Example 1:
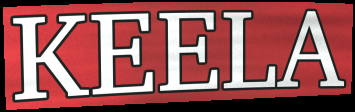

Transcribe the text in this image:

KEELA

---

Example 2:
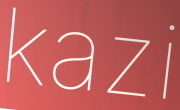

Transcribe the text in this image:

kazi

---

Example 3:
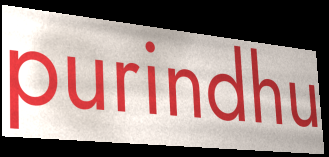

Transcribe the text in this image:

purindhu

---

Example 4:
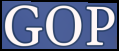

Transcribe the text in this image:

GOP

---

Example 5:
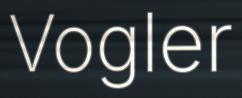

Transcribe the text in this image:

Vogler